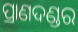
ପ୍ରାଣଦଣ୍ଡର